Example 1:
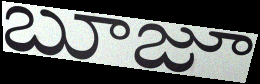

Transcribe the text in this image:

బూజూ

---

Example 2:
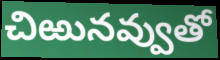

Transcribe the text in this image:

చిఱునవ్వుతో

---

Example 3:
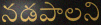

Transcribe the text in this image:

నడపాలని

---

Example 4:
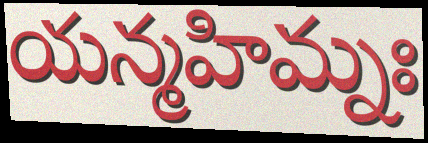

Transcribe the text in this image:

యన్మహిమ్నః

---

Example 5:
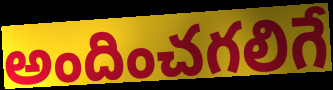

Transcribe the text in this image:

అందించగలిగే